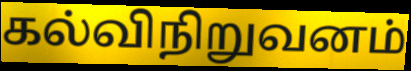
கல்விநிறுவனம்